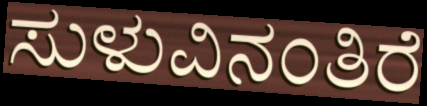
ಸುಳುವಿನಂತಿರೆ